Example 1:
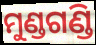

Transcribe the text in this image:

ମୁଣ୍ଡଗଣ୍ଡି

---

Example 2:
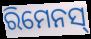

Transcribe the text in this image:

ରିମେନସ୍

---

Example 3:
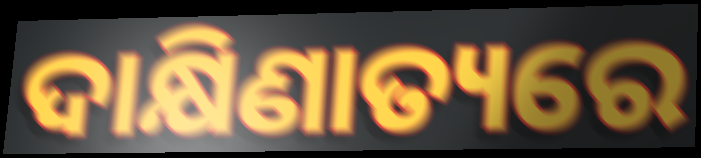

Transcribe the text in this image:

ଦାକ୍ଷିଣାତ୍ୟରେ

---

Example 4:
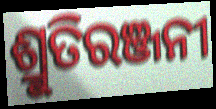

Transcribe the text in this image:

ଶ୍ରୁତିରଞ୍ଜନୀ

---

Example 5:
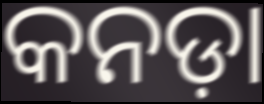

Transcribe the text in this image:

କନଡ଼ା